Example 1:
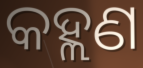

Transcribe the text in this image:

କହ୍ଲଣ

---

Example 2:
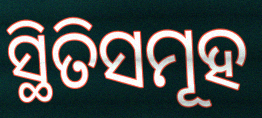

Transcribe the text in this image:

ସ୍ଥିତିସମୂହ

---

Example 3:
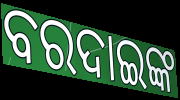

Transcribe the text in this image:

ବରଦାଇଙ୍କ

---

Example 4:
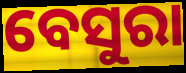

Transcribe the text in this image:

ବେସୁରା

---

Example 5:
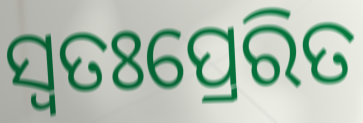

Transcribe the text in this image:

ସ୍ୱତଃପ୍ରେରିତ